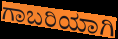
ಗಾಬರಿಯಾಗಿ